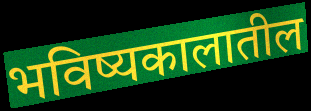
भविष्यकालातील